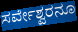
ಸರ್ವೇಶ್ವರನೂ